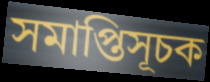
সমাপ্তিসূচক